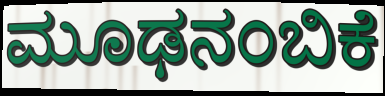
ಮೂಢನಂಬಿಕೆ